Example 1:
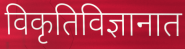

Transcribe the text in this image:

विकृतिविज्ञानात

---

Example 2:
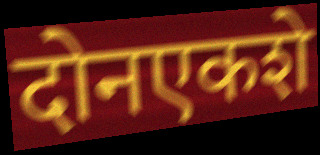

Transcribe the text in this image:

दोनएकशे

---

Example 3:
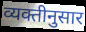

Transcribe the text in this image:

व्यक्तीनुसार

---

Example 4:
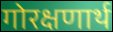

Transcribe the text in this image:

गोरक्षणार्थ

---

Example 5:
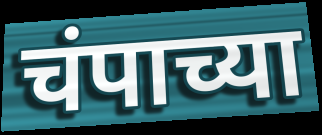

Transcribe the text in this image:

चंपाच्या